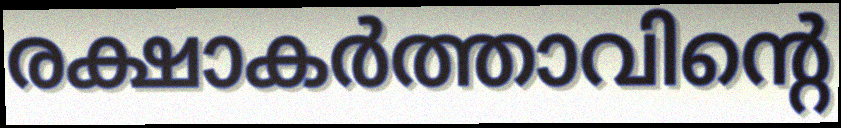
രക്ഷാകർത്താവിന്റെ